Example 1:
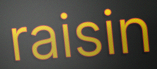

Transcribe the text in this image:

raisin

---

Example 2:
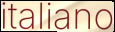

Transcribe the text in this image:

italiano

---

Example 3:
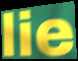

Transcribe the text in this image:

lie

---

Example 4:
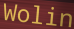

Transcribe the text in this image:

Wolin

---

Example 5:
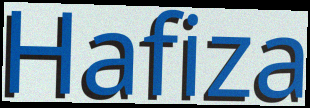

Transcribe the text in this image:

Hafiza